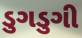
ડુગડુગી